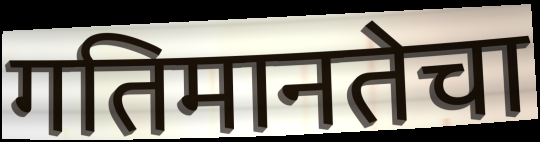
गतिमानतेचा